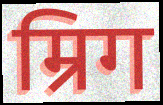
म्रिग